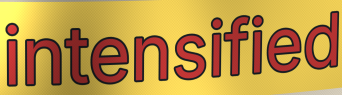
intensified